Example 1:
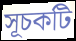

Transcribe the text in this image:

সূচকটি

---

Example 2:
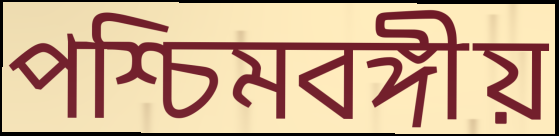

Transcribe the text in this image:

পশ্চিমবঙ্গীয়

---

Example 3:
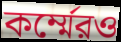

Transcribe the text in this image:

কর্ম্মেরও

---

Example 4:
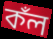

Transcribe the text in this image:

কঁল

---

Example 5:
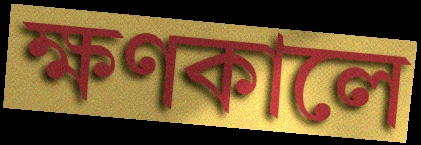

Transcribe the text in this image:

ক্ষণকালে